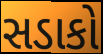
સડાકો